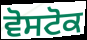
ਵੋਸਟੋਕ